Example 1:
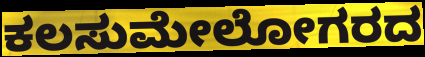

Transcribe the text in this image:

ಕಲಸುಮೇಲೋಗರದ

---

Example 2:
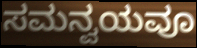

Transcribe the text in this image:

ಸಮನ್ವಯವೂ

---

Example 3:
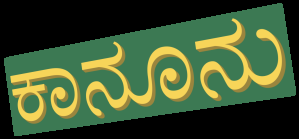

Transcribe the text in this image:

ಕಾನೂನು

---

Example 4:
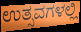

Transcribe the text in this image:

ಉತ್ಸವಗಳಲ್ಲಿ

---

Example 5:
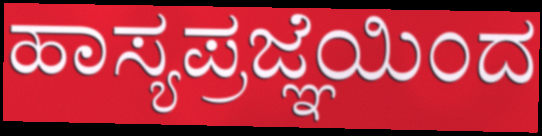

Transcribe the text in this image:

ಹಾಸ್ಯಪ್ರಜ್ಞೆಯಿಂದ